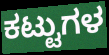
ಕಟ್ಟುಗಳ